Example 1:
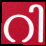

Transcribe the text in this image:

റി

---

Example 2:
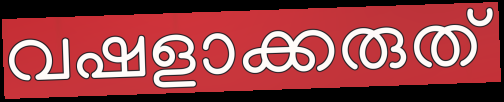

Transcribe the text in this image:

വഷളാക്കരുത്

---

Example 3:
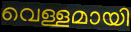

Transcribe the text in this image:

വെള്ളമായി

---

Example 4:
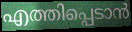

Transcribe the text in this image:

എത്തിപ്പെടാൻ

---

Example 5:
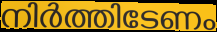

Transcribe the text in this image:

നിർത്തിടേണം